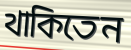
থাকিতেন